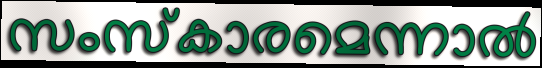
സംസ്കാരമെന്നാൽ